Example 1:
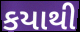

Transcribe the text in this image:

કયાથી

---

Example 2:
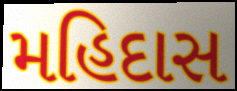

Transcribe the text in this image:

મહિદાસ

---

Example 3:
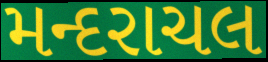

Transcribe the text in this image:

મન્દરાચલ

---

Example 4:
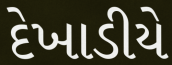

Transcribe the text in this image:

દેખાડીયે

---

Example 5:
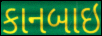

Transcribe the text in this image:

કાનબાઇ